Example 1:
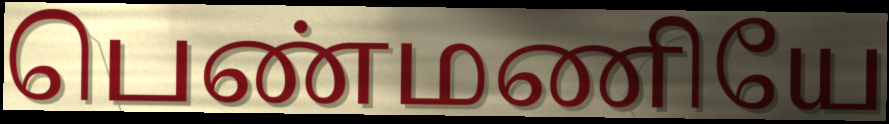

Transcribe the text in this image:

பெண்மணியே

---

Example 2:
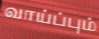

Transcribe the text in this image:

வாய்ப்பும்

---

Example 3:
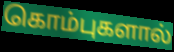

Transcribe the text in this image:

கொம்புகளால்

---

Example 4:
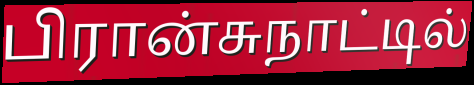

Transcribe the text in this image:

பிரான்சுநாட்டில்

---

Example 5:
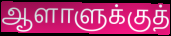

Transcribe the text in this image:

ஆளாளுக்குத்